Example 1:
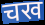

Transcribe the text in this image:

चख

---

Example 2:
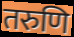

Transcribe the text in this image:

तरुणि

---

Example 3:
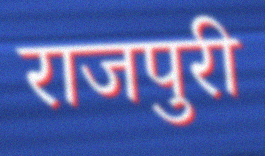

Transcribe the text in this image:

राजपुरी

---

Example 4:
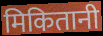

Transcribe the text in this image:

मिकितानी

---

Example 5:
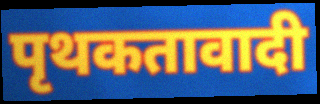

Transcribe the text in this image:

पृथकतावादी